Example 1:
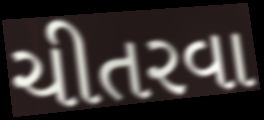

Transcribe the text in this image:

ચીતરવા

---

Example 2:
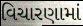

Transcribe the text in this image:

વિચારણામાં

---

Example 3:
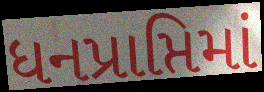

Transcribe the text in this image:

ધનપ્રાપ્તિમાં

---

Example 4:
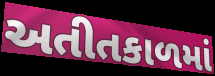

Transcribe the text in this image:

અતીતકાળમાં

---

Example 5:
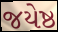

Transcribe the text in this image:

જયેષ્ઠ